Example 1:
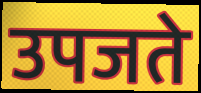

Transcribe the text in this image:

उपजते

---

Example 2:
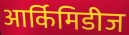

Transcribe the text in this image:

आर्किमिडीज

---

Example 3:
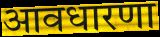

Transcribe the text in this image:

आवधारणा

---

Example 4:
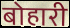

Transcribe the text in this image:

बोहारी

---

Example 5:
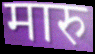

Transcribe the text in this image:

मारु